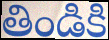
తిండికి